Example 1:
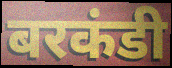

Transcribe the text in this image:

बरकंडी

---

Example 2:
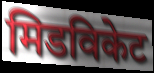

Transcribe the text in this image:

मिडविकेट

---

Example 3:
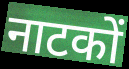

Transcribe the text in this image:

नाटकों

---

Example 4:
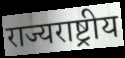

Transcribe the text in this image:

राज्यराष्ट्रीय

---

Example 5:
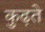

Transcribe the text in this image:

कुढ़ते